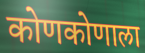
कोणकोणाला